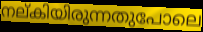
നല്കിയിരുന്നതുപോലെ